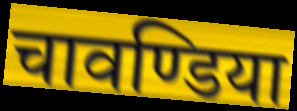
चावण्डिया